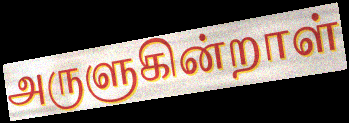
அருளுகின்றாள்